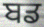
ਬਡ